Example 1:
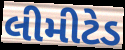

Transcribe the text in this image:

લીમીટેડ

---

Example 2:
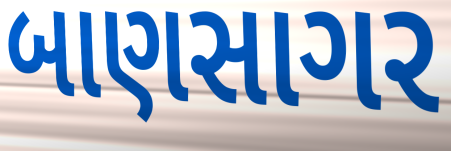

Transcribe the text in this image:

બાણસાગર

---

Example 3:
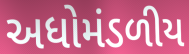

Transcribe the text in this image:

અધોમંડળીય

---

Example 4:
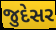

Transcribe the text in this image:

જુદેસર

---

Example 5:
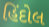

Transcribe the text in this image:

હિંદોલ